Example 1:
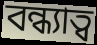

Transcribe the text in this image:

বন্ধ্যাত্ব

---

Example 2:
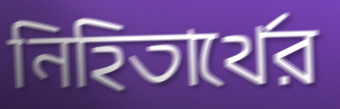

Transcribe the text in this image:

নিহিতার্থের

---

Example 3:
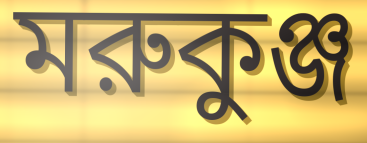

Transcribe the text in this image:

মরুকুঞ্জ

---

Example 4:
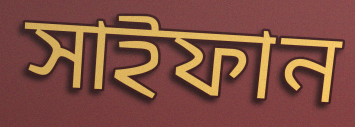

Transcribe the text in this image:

সাইফান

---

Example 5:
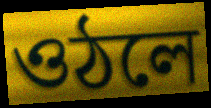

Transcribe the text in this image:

ওঠলে